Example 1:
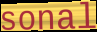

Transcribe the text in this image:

sonal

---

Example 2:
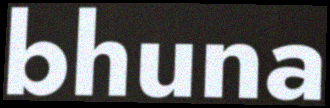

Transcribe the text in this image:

bhuna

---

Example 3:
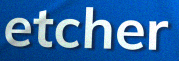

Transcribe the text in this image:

etcher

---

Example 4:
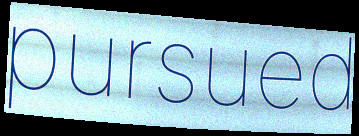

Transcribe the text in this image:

pursued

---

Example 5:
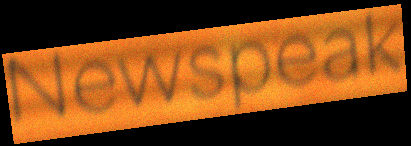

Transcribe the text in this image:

Newspeak